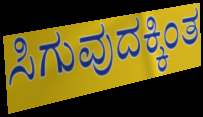
ಸಿಗುವುದಕ್ಕಿಂತ